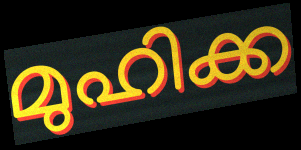
മുഹിക്ക